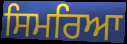
ਸਿਮਰਿਆ